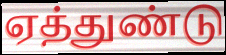
ஏத்துண்டு